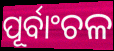
ପୂର୍ବାଂଚଳ